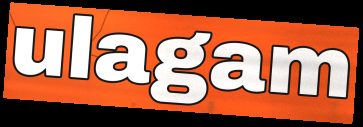
ulagam